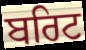
ਬਰਿਟ